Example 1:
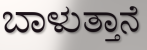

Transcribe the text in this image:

ಬಾಳುತ್ತಾನೆ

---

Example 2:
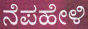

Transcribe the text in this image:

ನೆಪಹೇಳಿ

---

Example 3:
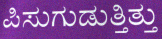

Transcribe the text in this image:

ಪಿಸುಗುಡುತ್ತಿತ್ತು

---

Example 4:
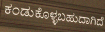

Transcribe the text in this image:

ಕಂಡುಕೊಳ್ಳಬಹುದಾಗಿದೆ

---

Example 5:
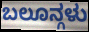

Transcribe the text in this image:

ಬಲೂನ್ಗಳು